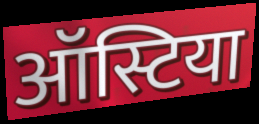
ऑस्टिया